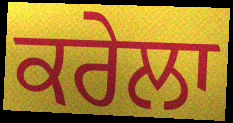
ਕਰੇਲਾ